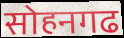
सोहनगढ